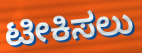
ಟೀಕಿಸಲು